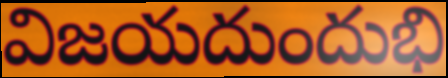
విజయదుందుభి